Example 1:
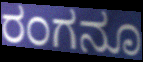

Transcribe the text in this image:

ರಂಗನೂ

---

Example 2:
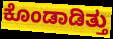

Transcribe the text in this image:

ಕೊಂಡಾಡಿತ್ತು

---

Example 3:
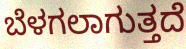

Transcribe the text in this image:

ಬೆಳಗಲಾಗುತ್ತದೆ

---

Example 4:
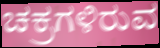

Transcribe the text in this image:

ಚಕ್ರಗಳಿರುವ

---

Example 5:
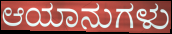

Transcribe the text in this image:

ಆಯಾನುಗಳು